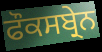
ਫੌਕਸਬ੍ਰੇਨ